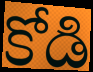
కోడి